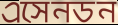
এসেনডন